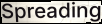
Spreading